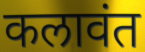
कलावंत